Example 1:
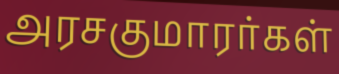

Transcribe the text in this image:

அரசகுமாரர்கள்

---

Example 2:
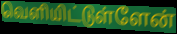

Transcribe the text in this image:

வெளியிட்டுள்ளேன்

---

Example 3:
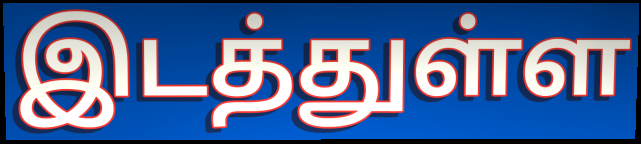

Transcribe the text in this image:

இடத்துள்ள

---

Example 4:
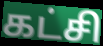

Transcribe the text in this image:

கட்சி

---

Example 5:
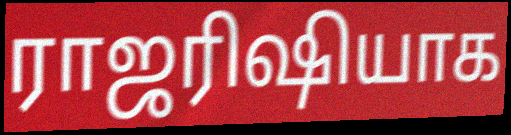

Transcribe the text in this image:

ராஜரிஷியாக